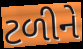
ટળીને